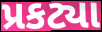
પ્રકટ્યા